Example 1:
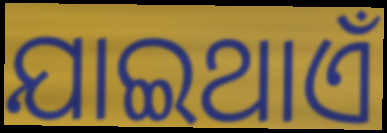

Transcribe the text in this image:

ଯାଇଥାଏଁ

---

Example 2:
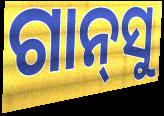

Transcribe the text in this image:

ଗାନ୍‍ସୁ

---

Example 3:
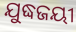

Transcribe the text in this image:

ଯୁଦ୍ଧଜୟୀ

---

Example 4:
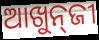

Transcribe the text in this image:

ଆଖୁନ୍‌ଜୀ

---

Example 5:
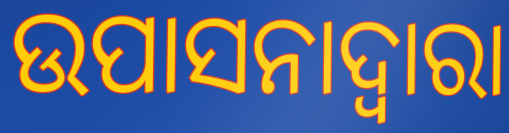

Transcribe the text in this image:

ଉପାସନାଦ୍ଵାରା